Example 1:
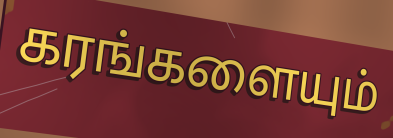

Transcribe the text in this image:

கரங்களையும்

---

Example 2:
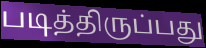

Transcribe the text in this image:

படித்திருப்பது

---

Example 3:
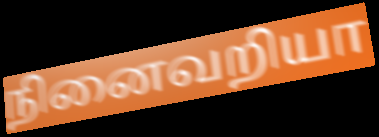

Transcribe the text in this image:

நினைவறியா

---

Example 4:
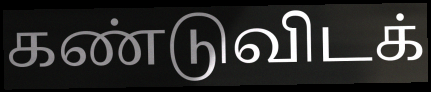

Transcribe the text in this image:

கண்டுவிடக்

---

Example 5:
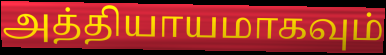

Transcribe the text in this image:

அத்தியாயமாகவும்